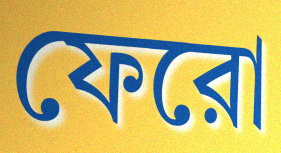
ফেরো